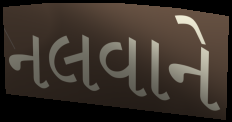
નલવાને